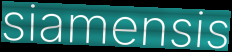
siamensis